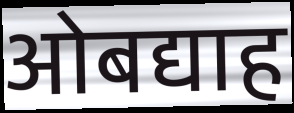
ओबद्याह